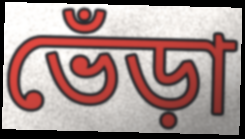
ভেঁড়া